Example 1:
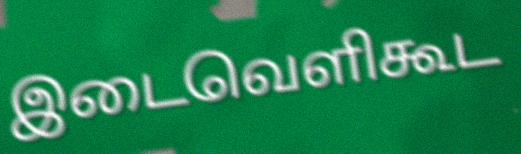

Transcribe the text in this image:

இடைவெளிகூட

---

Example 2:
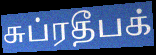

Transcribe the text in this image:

சுப்ரதீபக்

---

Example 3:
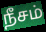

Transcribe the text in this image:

நீசம்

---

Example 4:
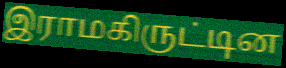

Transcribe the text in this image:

இராமகிருட்டின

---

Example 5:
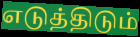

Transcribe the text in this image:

எடுத்திடும்